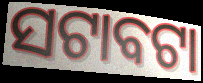
ସଟାବଟା